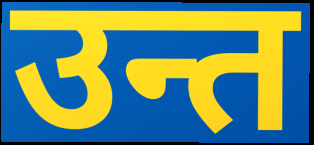
उन्त